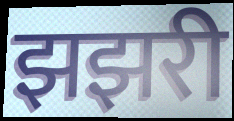
झझरी